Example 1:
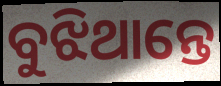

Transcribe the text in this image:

ବୁଝିଥାନ୍ତେ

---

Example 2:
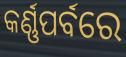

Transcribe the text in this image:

କର୍ଣ୍ଣପର୍ବରେ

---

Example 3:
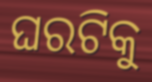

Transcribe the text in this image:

ଘରଟିକୁ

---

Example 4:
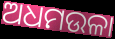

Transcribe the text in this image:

ଅଧମଉଳା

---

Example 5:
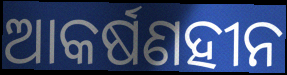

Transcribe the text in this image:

ଆକର୍ଷଣହୀନ